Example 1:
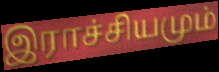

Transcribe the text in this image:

இராச்சியமும்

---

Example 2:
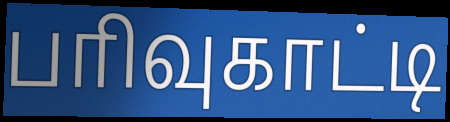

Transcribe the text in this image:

பரிவுகாட்டி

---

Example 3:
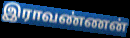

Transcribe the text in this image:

இராவண்ணன்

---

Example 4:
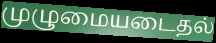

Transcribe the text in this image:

முழுமையடைதல்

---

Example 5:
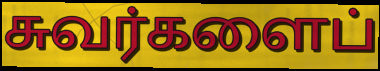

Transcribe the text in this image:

சுவர்களைப்